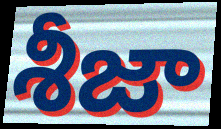
శీజా